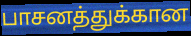
பாசனத்துக்கான